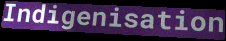
Indigenisation